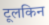
टूलकिन